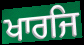
ਖਾਰਜਿ